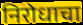
निरोधाचा